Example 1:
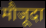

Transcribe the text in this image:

मौजूदा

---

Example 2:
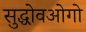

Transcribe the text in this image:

सुद्धोवओगो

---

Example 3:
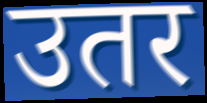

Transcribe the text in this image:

उतर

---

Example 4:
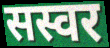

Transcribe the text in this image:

सस्वर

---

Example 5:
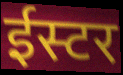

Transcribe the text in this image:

ईस्टर